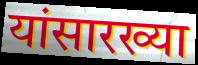
यांसारख्या